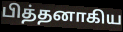
பித்தனாகிய